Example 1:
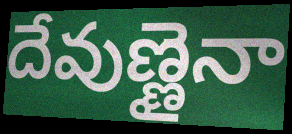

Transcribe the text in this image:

దేవుణ్ణైనా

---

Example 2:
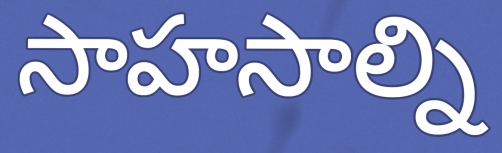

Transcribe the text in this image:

సాహసాల్ని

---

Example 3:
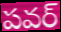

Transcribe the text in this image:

పవర్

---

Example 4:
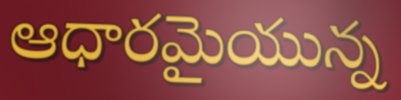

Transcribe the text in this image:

ఆధారమైయున్న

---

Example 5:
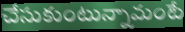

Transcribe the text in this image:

చేసుకుంటున్నామంటే